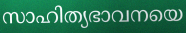
സാഹിത്യഭാവനയെ